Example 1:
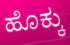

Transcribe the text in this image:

ಹೊಕ್ಕು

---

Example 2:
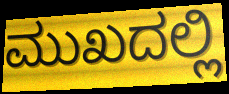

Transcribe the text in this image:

ಮುಖದಲ್ಲಿ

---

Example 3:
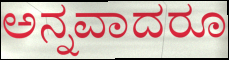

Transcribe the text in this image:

ಅನ್ನವಾದರೂ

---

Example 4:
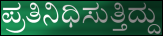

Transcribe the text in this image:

ಪ್ರತಿನಿಧಿಸುತ್ತಿದ್ದು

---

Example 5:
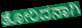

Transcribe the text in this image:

ತೋರಿದನಾಗಿ